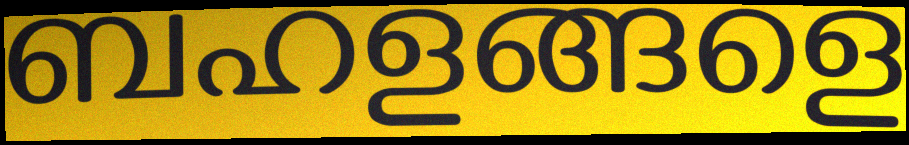
ബഹളങ്ങളെ